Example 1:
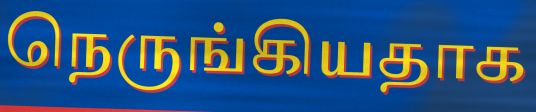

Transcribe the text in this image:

நெருங்கியதாக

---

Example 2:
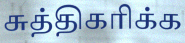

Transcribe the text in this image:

சுத்திகரிக்க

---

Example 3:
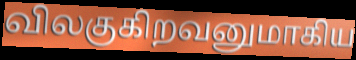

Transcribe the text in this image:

விலகுகிறவனுமாகிய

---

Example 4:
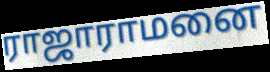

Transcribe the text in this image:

ராஜாராமனை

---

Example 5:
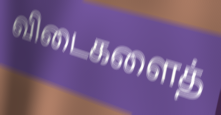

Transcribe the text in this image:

விடைகளைத்